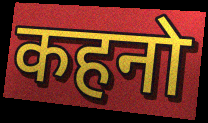
कहनो